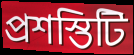
প্রশস্তিটি